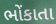
ભોંકાતા